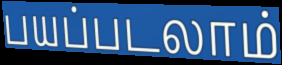
பயப்படலாம்